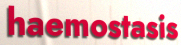
haemostasis